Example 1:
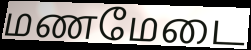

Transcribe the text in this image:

மணமேடை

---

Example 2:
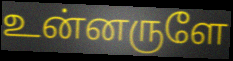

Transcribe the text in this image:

உன்னருளே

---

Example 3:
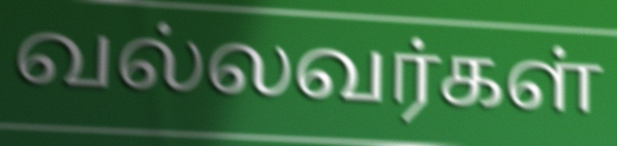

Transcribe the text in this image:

வல்லவர்கள்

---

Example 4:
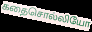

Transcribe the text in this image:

கதைசொல்லியோ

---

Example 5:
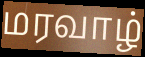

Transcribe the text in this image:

மரவாழ்